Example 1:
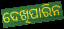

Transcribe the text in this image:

ଦେଖିପାରିନ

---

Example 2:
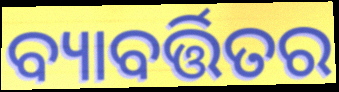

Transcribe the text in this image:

ବ୍ୟାବର୍ତ୍ତିତର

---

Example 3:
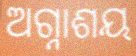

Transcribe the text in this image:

ଅଗ୍ନାଶୟ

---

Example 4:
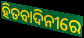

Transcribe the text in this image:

ହିତବାଦିନୀରେ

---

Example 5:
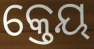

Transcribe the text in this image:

କ୍ତେୟ